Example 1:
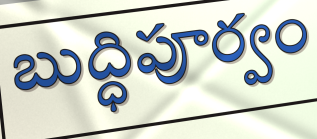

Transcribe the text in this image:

బుద్ధిపూర్వం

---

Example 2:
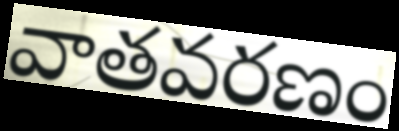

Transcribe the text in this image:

వాతవరణం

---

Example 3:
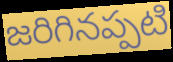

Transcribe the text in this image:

జరిగినప్పటి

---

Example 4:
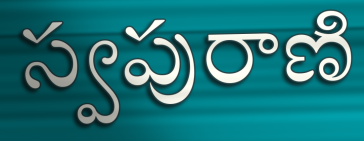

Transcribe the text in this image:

స్వపురాణి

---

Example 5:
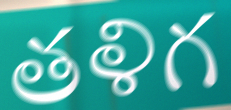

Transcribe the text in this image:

తళిగ